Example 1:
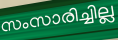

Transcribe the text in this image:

സംസാരിച്ചില്ല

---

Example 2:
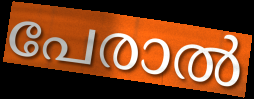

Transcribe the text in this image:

പേരാൽ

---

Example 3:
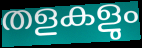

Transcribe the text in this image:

തളകളും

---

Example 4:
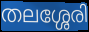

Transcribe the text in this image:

തലശ്ശേരി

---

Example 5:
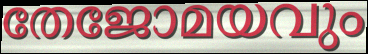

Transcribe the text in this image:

തേജോമയവും